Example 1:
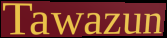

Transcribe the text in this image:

Tawazun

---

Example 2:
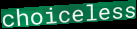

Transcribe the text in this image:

choiceless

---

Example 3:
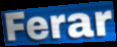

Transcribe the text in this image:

Ferar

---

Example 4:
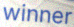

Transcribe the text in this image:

winner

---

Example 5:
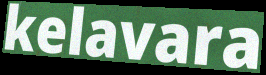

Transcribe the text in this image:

kelavara